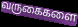
வருகைகளை